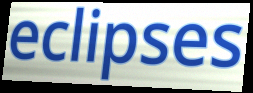
eclipses